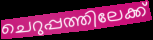
ചെറുപ്പത്തിലേക്ക്